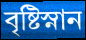
বৃষ্টিস্নান